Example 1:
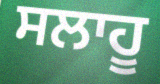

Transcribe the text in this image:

ਸਲਾਹੂ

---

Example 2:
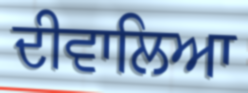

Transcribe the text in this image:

ਦੀਵਾਲਿਆ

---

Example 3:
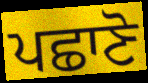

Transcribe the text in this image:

ਪਛਾਣੋ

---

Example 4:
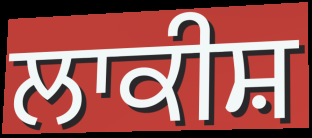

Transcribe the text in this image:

ਲਾਕੀਸ਼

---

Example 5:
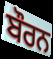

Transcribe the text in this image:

ਬੌਰਨ